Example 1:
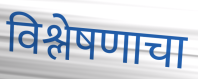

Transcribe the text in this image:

विश्लेषणाचा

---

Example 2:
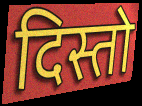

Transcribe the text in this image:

दिस्तो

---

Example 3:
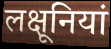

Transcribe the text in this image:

लक्षूनियां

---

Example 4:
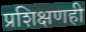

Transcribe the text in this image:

प्रशिक्षणही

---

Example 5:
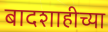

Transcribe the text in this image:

बादशाहीच्या